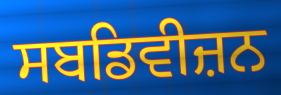
ਸਬਡਿਵੀਜ਼ਨ